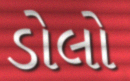
ડોલો